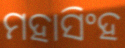
ମହାସିଂହ